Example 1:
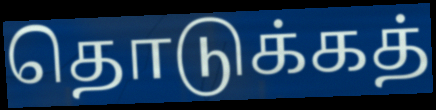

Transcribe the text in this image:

தொடுக்கத்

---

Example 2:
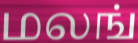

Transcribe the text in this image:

மலங்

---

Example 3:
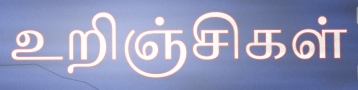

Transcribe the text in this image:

உறிஞ்சிகள்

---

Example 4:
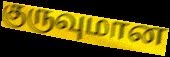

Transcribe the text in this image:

குருவுமான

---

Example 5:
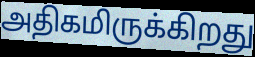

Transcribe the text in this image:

அதிகமிருக்கிறது